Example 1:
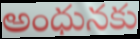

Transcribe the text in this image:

అంధునకు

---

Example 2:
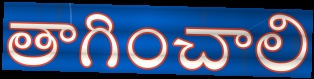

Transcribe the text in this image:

తాగించాలి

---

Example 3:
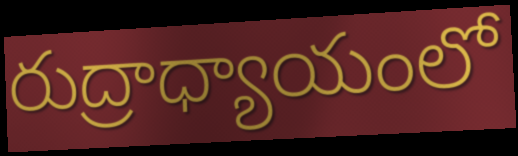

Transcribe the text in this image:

రుద్రాధ్యాయంలో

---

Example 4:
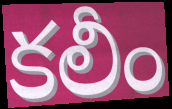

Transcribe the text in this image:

కలీం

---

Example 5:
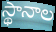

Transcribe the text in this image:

స్థానాల